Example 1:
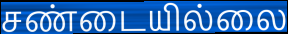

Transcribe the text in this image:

சண்டையில்லை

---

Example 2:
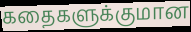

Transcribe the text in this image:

கதைகளுக்குமான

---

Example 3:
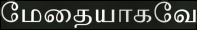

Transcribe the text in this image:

மேதையாகவே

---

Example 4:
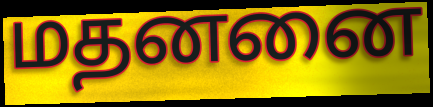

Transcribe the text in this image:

மதனனை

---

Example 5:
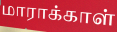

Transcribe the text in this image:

மாராக்காள்